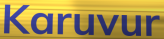
Karuvur